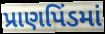
પ્રાણપિંડમાં